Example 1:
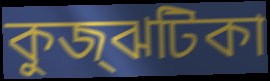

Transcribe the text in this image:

কুজ্‌ঝটিকা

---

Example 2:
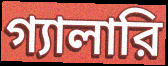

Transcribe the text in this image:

গ্যালারি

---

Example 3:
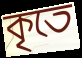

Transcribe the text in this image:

কৃতে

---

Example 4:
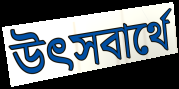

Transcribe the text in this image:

উৎসবার্থে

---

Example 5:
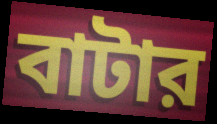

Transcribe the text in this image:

বাটার